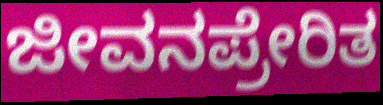
ಜೀವನಪ್ರೇರಿತ